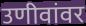
उणीवांवर